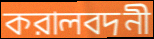
করালবদনী